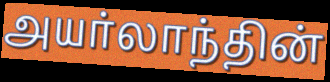
அயர்லாந்தின்